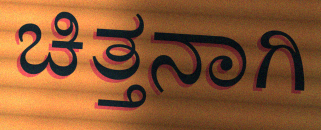
ಚಿತ್ತನಾಗಿ